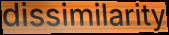
dissimilarity